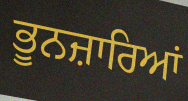
ਭੂਨਜ਼ਾਰਿਆਂ